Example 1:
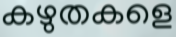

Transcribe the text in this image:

കഴുതകളെ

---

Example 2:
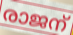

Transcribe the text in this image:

രാജന്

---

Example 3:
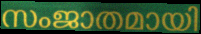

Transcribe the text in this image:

സംജാതമായി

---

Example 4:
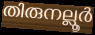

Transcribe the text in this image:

തിരുനല്ലൂർ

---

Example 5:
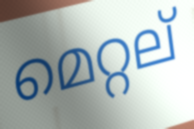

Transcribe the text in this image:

മെറ്റല്